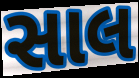
સાલ